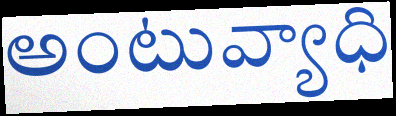
అంటువ్యాధి